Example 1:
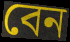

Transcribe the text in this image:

বেন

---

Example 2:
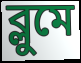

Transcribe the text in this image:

ব্লুমে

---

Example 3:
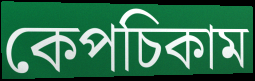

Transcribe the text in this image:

কেপচিকাম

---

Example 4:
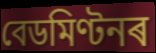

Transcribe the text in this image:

বেডমিণ্টনৰ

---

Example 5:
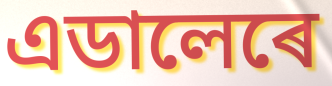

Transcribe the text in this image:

এডালেৰে